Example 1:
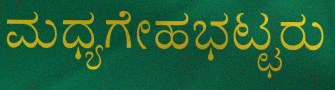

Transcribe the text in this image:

ಮಧ್ಯಗೇಹಭಟ್ಟರು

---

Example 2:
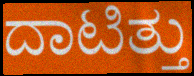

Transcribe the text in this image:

ದಾಟಿತ್ತು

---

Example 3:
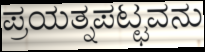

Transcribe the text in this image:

ಪ್ರಯತ್ನಪಟ್ಟವನು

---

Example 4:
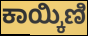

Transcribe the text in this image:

ಕಾಯ್ಕಿಣಿ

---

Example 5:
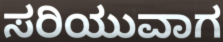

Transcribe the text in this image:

ಸರಿಯುವಾಗ